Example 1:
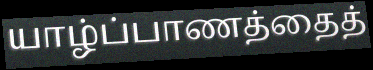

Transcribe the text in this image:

யாழ்ப்பாணத்தைத்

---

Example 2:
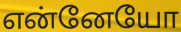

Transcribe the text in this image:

என்னேயோ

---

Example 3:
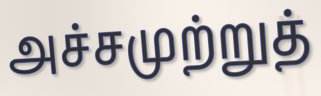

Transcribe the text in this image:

அச்சமுற்றுத்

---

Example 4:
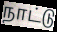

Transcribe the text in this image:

நாட்டு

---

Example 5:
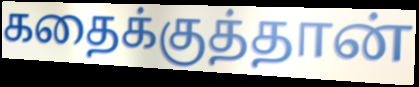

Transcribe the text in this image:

கதைக்குத்தான்